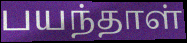
பயந்தாள்